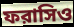
ফরাসিও